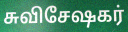
சுவிசேஷகர்